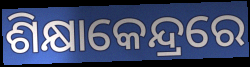
ଶିକ୍ଷାକେନ୍ଦ୍ରରେ